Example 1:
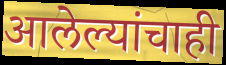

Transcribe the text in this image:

आलेल्यांचाही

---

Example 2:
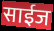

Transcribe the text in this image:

साईज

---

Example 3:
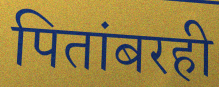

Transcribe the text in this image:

पितांबरही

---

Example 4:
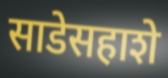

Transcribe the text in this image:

साडेसहाशे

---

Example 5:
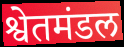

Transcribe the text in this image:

श्वेतमंडल